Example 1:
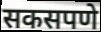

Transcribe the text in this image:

सकसपणे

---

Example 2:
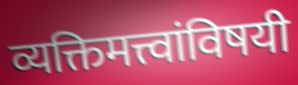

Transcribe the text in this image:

व्यक्तिमत्त्वांविषयी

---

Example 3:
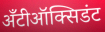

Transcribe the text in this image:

अँटीऑक्सिडंट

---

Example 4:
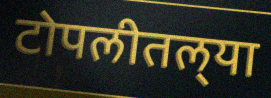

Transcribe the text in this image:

टोपलीतल्या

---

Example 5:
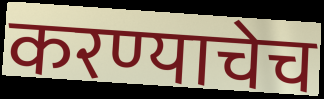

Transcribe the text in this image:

करण्याचेच